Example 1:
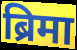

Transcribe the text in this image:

ब्रिमा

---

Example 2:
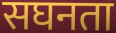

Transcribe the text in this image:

सघनता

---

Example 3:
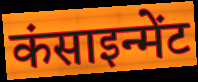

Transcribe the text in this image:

कंसाइन्मेंट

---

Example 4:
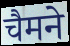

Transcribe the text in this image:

चैमने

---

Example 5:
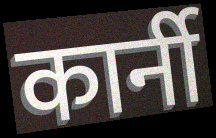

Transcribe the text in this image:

कार्नी